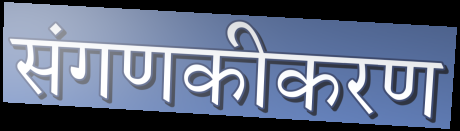
संगणकीकरण